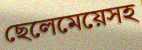
ছেলেমেয়েসহ